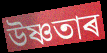
উষ্ণতাৰ